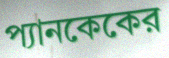
প্যানকেকের